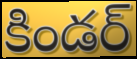
కిండర్